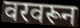
वरवरून